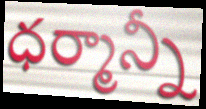
ధర్మాన్నీ